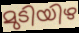
മുടിയിഴ